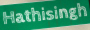
Hathisingh